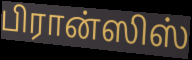
பிரான்ஸிஸ்